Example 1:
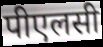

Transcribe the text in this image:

पीएलसी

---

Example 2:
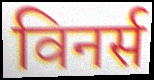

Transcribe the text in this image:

विनर्स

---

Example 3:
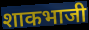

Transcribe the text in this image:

शाकभाजी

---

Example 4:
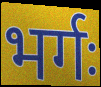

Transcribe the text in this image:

भर्गः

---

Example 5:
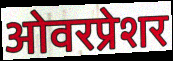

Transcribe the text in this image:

ओवरप्रेशर